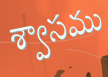
శ్వాసము